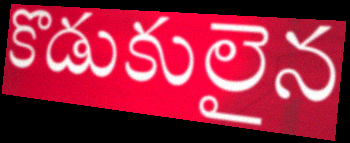
కొడుకులైన